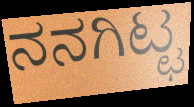
ನನಗಿಟ್ಟ